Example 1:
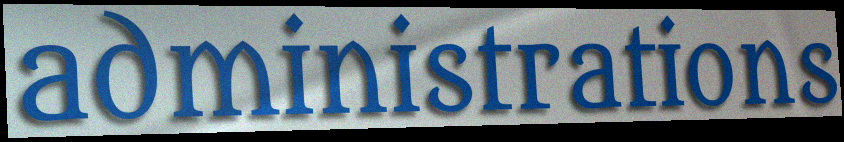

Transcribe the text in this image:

administrations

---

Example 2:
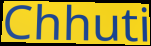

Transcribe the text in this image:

Chhuti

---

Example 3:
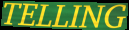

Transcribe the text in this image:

TELLING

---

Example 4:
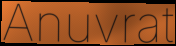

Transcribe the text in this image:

Anuvrat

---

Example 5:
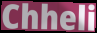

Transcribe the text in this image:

Chheli